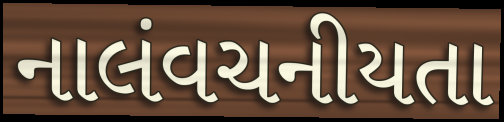
નાલંવચનીયતા